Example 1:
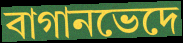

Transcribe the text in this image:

বাগানভেদে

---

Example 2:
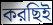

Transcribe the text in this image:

করছিই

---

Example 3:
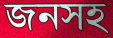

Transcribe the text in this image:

জনসহ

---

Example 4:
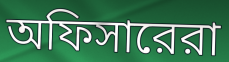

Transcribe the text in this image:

অফিসারেরা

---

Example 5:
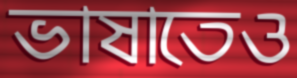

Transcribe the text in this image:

ভাষাতেও